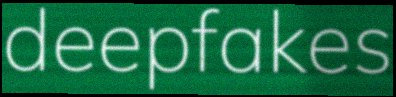
deepfakes